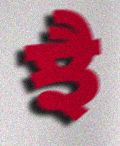
ਝੈ